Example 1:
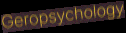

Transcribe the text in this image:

Geropsychology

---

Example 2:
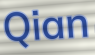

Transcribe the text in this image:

Qian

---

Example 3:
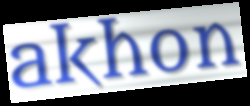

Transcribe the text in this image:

akhon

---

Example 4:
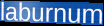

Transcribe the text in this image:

laburnum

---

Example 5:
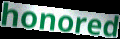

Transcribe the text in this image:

honored